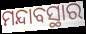
ମନ୍ଦାବସ୍ଥାର